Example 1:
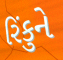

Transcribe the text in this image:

રિંકુને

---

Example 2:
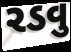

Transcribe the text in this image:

રડવુ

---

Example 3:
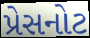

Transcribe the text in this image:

પ્રેસનોટ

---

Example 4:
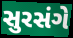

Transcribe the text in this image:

સુરસંગે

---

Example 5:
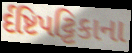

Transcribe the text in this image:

ર્દષ્ટિપટ્ટિકાના